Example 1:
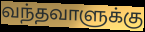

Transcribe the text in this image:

வந்தவாளுக்கு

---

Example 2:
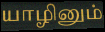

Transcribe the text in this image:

யாழினும்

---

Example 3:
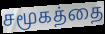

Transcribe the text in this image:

சமூகத்தை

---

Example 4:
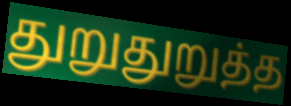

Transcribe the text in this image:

துறுதுறுத்த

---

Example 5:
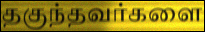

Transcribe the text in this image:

தகுந்தவர்களை